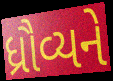
ધ્રૌવ્યને